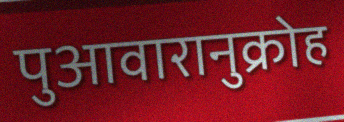
पुआवारानुक्रोह